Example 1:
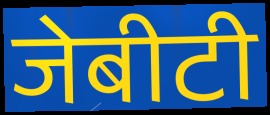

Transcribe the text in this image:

जेबीटी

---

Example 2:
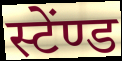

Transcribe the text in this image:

स्टेंण्ड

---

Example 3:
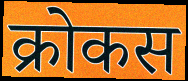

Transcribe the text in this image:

क्रोकस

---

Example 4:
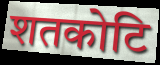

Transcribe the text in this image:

शतकोटि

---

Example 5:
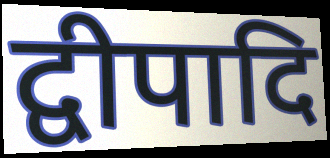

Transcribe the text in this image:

द्वीपादि